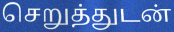
செறுத்துடன்